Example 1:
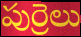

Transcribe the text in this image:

పుర్రెలు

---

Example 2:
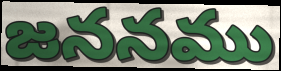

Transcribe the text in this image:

జననము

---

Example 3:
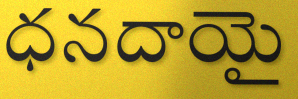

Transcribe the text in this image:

ధనదాయై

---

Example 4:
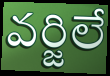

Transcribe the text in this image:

వర్జిలే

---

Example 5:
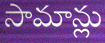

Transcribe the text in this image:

సామాన్లు